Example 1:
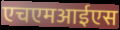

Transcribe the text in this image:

एचएमआईएस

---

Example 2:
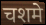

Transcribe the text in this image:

चशमे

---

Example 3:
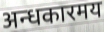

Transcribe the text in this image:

अन्धकारमय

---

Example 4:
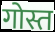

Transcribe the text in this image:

गोस्त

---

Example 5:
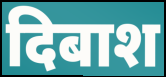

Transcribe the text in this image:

दिबाश